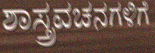
ಶಾಸ್ತ್ರವಚನಗಳಿಗೆ